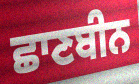
ਛਾਣਬੀਨ